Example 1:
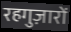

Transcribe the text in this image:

रहगुज़ारों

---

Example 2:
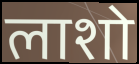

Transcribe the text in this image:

लाशो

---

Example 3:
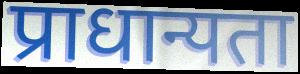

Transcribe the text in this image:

प्राधान्यता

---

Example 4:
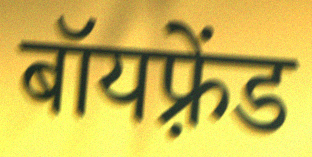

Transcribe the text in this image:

बॉयफ़्रेंड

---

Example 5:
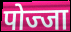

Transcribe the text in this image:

पोज्जा